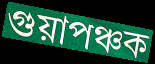
গুয়াপঞ্চক